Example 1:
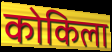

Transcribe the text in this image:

कोकिला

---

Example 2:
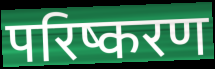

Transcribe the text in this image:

परिष्करण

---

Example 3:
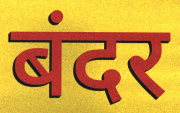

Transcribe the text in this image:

बंदर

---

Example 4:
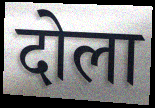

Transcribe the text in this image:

दोला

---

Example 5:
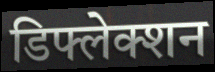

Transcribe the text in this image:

डिफ्लेक्शन